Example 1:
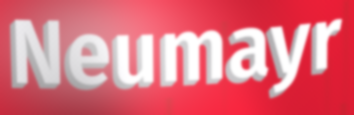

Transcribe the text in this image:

Neumayr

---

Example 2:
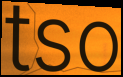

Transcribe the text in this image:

tso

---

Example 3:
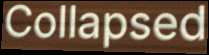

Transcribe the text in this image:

Collapsed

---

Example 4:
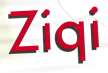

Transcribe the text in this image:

Ziqi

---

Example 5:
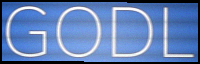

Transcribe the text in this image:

GODL